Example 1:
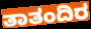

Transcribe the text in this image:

ತಾತಂದಿರ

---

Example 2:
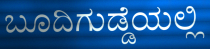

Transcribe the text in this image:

ಬೂದಿಗುಡ್ಡೆಯಲ್ಲಿ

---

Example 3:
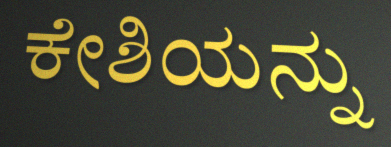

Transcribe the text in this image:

ಕೇಶಿಯನ್ನು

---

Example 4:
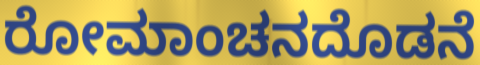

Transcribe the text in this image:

ರೋಮಾಂಚನದೊಡನೆ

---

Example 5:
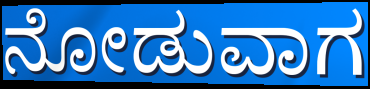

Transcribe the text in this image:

ನೋಡುವಾಗ